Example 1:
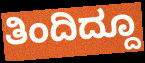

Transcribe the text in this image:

ತಿಂದಿದ್ದೂ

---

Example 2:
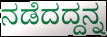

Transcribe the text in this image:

ನಡೆದದ್ದನ್ನ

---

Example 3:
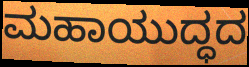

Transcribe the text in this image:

ಮಹಾಯುದ್ಧದ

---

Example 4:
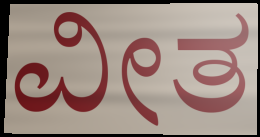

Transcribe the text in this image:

ವೀತ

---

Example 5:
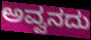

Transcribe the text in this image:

ಅವ್ವನದು